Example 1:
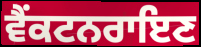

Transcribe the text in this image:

ਵੈਂਕਟਨਰਾਇਣ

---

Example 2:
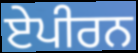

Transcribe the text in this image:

ਏਪੀਰਨ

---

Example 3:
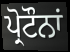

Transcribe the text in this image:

ਪ੍ਰੋਟੌਨਾਂ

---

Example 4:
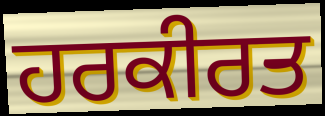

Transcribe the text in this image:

ਹਰਕੀਰਤ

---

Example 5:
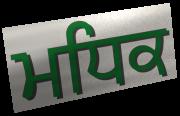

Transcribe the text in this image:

ਮਧਿਕ